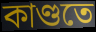
কাণ্ডতে